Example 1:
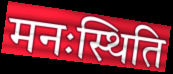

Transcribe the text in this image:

मनःस्थिति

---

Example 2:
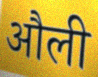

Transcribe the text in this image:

औली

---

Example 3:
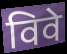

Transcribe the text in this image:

विवे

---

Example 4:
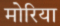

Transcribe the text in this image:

मोरिया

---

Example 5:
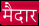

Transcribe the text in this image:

मैदार